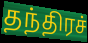
தந்திரச்